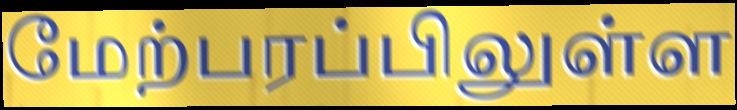
மேற்பரப்பிலுள்ள